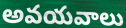
అవయవాలు